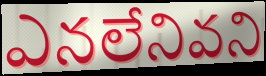
ఎనలేనివని